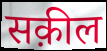
सक़ील